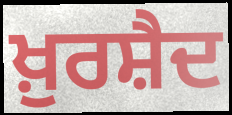
ਖ਼ੁਰਸ਼ੈਦ